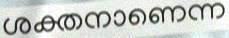
ശക്തനാണെന്ന